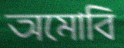
অমোবি